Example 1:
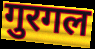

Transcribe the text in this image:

गुरगल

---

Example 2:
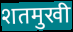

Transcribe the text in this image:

शतमुखी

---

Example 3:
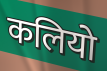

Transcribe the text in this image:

कलियो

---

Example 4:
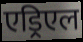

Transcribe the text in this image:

एड्रिएल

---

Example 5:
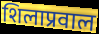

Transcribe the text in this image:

शिलाप्रवाल